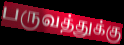
பருவத்துக்கு